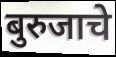
बुरुजाचे